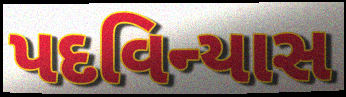
પદવિન્યાસ